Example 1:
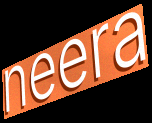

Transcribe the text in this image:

neera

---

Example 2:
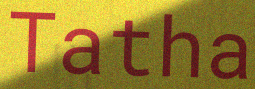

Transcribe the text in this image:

Tatha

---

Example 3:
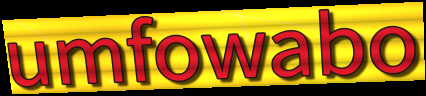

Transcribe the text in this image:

umfowabo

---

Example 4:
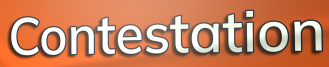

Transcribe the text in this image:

Contestation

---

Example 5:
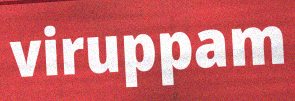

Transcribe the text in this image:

viruppam